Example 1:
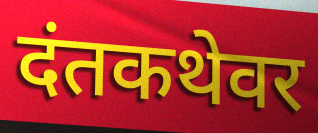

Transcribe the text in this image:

दंतकथेवर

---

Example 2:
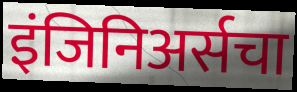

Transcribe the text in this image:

इंजिनिअर्सचा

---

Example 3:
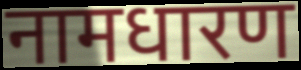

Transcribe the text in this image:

नामधारण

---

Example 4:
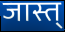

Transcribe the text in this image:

जास्त्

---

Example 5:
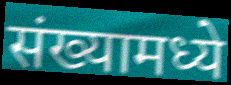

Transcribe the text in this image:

संख्यामध्ये